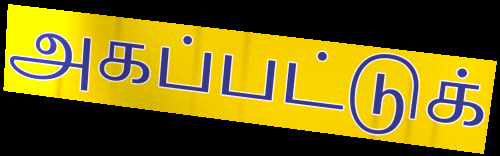
அகப்பட்டுக்